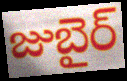
జుబైర్